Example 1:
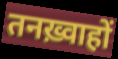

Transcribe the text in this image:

तनख़्वाहों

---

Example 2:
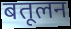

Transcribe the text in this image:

बतूलन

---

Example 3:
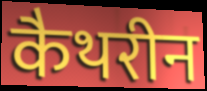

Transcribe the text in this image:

कैथरीन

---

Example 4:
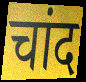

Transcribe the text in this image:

चांद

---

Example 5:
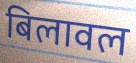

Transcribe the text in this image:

बिलावल